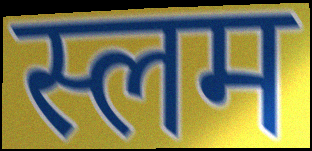
स्लम